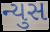
ન્યુસ